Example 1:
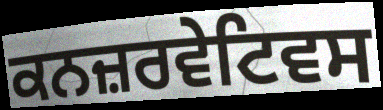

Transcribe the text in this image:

ਕਨਜ਼ਰਵੇਟਿਵਸ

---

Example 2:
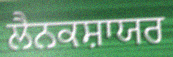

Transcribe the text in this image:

ਲੈਨਕਸ਼ਾਯਰ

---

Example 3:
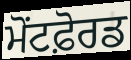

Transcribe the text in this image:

ਮੋਂਟਫ਼ੋਰਡ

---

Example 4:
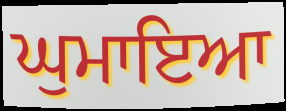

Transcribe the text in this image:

ਘੁਮਾਇਆ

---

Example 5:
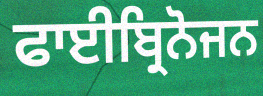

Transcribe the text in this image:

ਫਾਈਬ੍ਰਿਨੋਜਨ